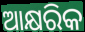
ଆକ୍ଷରିକ